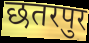
छतरपुर